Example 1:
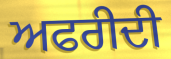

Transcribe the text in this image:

ਅਫਰੀਦੀ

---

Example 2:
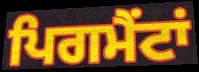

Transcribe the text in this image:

ਪਿਗਮੈਂਟਾਂ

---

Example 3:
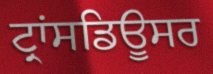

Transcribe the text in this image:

ਟ੍ਰਾਂਸਡਿਊਸਰ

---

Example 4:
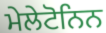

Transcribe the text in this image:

ਮੇਲੇਟੋਨਿਨ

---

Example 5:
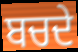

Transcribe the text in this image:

ਬਚਦੇ